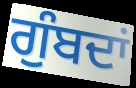
ਗੁੰਬਦਾਂ